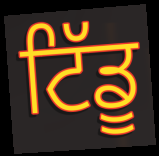
ਟਿੱਡੂ